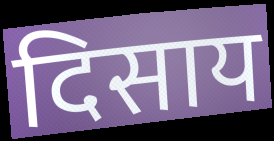
दिसाय